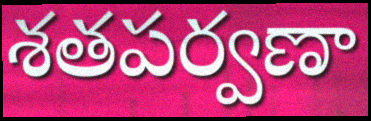
శతపర్వణా